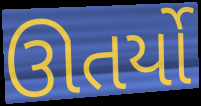
ઊતર્યો